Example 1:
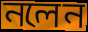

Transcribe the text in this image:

নলেন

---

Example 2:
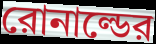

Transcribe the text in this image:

রোনাল্ডের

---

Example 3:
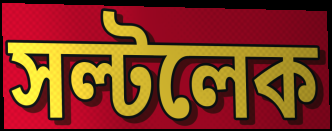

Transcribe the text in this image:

সল্টলেক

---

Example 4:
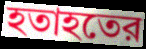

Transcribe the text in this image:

হতাহতের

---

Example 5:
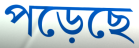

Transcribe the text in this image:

পড়েছে